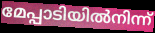
മേപ്പാടിയിൽനിന്ന്